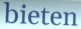
bieten